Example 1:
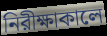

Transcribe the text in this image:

নিরীক্ষাকালে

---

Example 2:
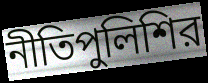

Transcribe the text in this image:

নীতিপুলিশির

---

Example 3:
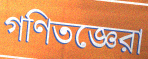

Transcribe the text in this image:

গণিতজ্ঞেরা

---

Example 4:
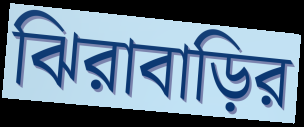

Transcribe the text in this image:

ঝিরাবাড়ির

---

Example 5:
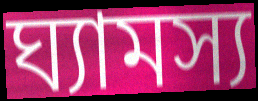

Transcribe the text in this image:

ঘ্যামস্য